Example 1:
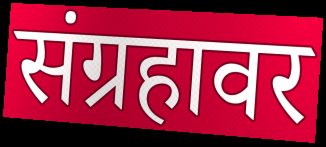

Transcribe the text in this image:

संग्रहावर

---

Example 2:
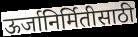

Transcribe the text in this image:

ऊर्जानिर्मितीसाठी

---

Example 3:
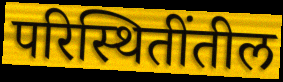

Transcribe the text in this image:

परिस्थितींतील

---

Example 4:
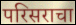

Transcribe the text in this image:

परिसराचा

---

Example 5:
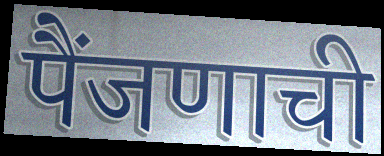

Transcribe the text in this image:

पैंजणाची